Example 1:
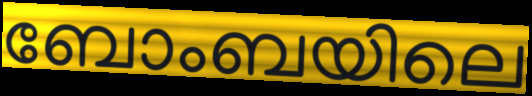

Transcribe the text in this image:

ബോംബയിലെ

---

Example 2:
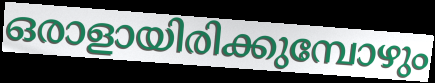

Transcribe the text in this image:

ഒരാളായിരിക്കുമ്പോഴും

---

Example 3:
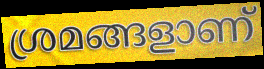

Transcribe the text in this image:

ശ്രമങ്ങളാണ്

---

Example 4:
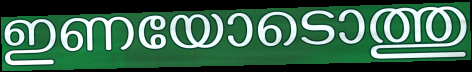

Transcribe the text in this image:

ഇണയോടൊത്തു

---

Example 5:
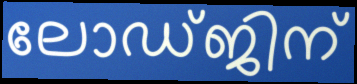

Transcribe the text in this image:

ലോഡ്ജിന്